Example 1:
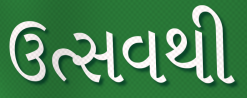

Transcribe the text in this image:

ઉત્સવથી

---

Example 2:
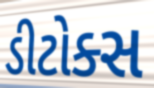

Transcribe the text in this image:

ડીટોક્સ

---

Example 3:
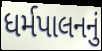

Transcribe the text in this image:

ધર્મપાલનનું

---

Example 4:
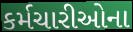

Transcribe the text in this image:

કર્મચારીઓના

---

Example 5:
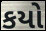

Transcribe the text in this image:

કયો